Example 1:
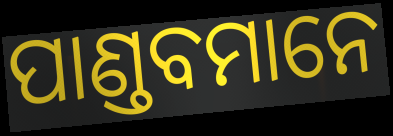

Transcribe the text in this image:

ପାଣ୍ଡବମାନେ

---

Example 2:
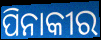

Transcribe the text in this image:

ପିନାକୀର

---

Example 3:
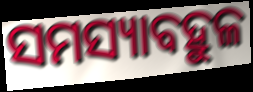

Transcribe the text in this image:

ସମସ୍ୟାବହୁଳ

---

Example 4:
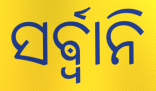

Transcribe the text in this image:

ସର୍ଵ୍ଵାନି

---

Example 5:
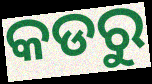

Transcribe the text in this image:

କଡରୁ